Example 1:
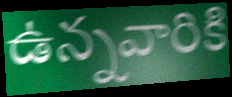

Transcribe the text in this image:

ఉన్నవారికి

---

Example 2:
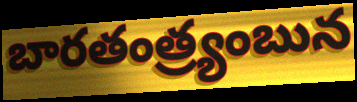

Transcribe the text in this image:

బారతంత్ర్యంబున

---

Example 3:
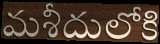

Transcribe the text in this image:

మశీదులోకి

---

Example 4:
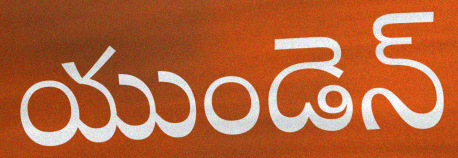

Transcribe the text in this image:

యుండెన్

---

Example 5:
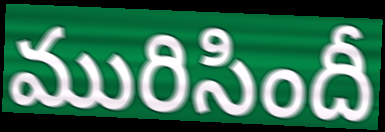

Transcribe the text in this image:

మురిసిందీ